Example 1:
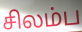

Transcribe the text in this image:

சிலம்ப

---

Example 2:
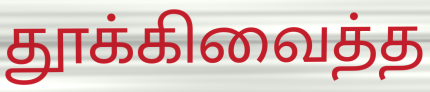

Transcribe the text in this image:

தூக்கிவைத்த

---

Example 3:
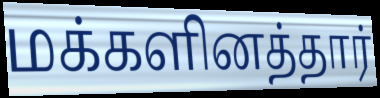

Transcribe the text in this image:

மக்களினத்தார்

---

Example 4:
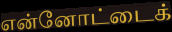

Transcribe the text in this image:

என்னோட்டைக்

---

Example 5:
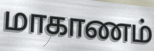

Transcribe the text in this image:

மாகாணம்